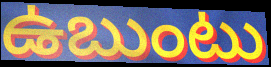
ఉబుంటు